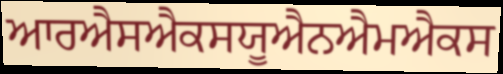
ਆਰਐਸਐਕਸਯੂਐਨਐਮਐਕਸ